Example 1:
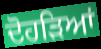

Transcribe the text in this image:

ਦੋਹੜਿਆਂ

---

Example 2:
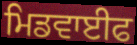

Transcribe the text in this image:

ਮਿਡਵਾਈਫ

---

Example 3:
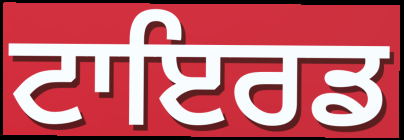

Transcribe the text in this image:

ਟਾਇਰਡ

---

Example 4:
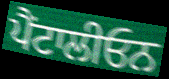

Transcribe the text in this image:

ਪੈਂਟਾਲੀਓਨ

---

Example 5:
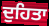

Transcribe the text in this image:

ਦੁਹਿਤਾ